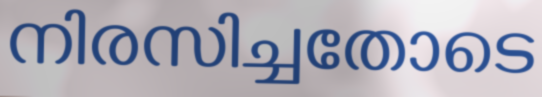
നിരസിച്ചതോടെ